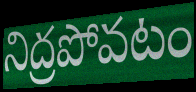
నిద్రపోవటం